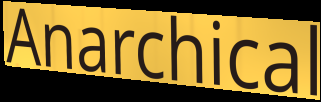
Anarchical